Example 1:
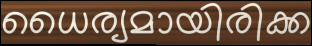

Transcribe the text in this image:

ധൈര്യമായിരിക്ക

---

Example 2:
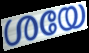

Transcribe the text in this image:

ശയേ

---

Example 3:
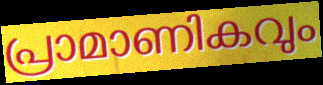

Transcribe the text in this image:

പ്രാമാണികവും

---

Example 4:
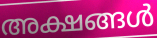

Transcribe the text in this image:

അക്ഷങ്ങൾ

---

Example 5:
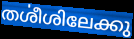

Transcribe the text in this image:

തൎശീശിലേക്കു